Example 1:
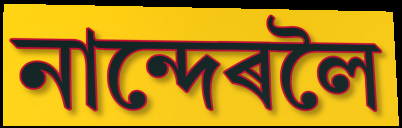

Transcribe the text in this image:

নান্দেৰলৈ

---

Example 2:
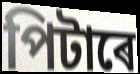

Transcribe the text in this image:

পিটাৰে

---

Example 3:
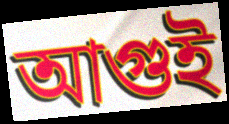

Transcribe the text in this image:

আগুই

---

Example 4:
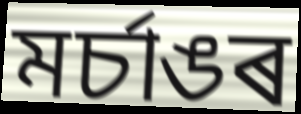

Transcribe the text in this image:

মৰ্চাঙৰ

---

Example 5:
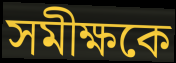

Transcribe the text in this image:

সমীক্ষকে